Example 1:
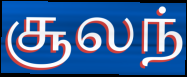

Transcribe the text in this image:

சூலந்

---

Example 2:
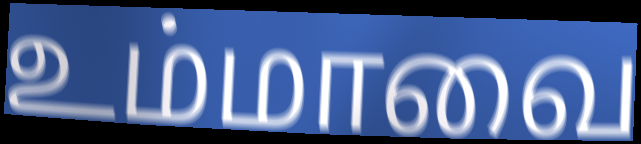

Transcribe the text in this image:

உம்மாவை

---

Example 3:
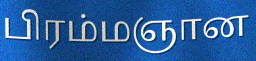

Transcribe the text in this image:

பிரம்மஞான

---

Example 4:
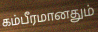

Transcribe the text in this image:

கம்பீரமானதும்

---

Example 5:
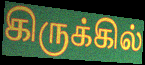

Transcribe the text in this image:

கிருக்கில்